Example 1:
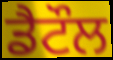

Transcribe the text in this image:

ਡੈਟੌਲ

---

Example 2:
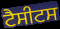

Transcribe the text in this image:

ਟੈਸੀਟਸ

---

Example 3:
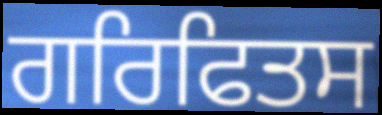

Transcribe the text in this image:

ਗਰਿਫਿਤਸ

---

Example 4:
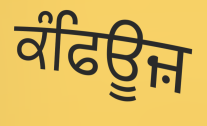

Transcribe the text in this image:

ਕੰਫਿਊਜ਼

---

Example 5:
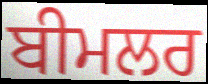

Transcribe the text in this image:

ਬੀਮਲਰ